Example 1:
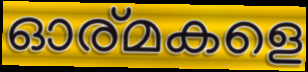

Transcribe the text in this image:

ഓര്മകളെ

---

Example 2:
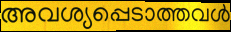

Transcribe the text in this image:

അവശ്യപ്പെടാത്തവൾ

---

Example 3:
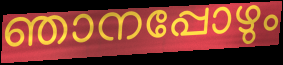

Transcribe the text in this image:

ഞാനപ്പോഴും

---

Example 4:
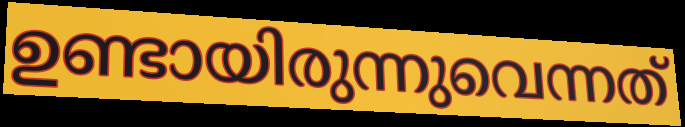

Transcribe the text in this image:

ഉണ്ടായിരുന്നുവെന്നത്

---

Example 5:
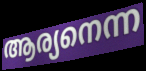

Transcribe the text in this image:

ആര്യനെന്ന